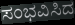
ಸಂಭವಿಸಿದ